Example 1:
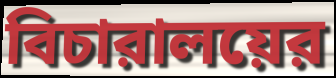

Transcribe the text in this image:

বিচারালয়ের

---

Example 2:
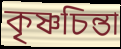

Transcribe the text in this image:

কৃষ্ণচিন্তা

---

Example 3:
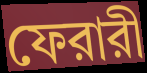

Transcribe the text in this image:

ফেরারী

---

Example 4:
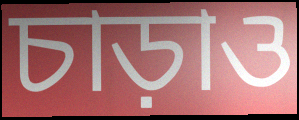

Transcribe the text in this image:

চাড়াও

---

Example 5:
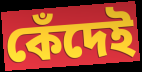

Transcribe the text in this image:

কেঁদেই